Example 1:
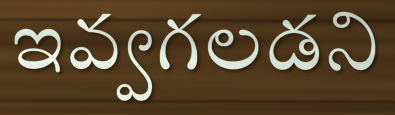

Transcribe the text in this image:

ఇవ్వగలడని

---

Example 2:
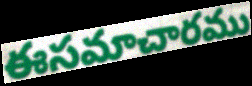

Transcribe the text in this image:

ఈసమాచారము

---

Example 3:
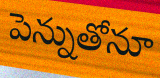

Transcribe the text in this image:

పెన్నుతోనూ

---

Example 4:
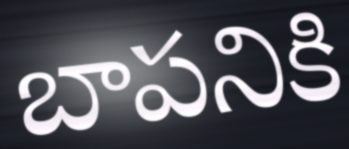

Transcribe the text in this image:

బాపనికి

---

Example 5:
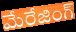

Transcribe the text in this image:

మేరేజింగ్